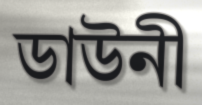
ডাউনী